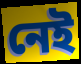
নেই